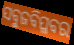
ସବୁଜବିପ୍ଳବର